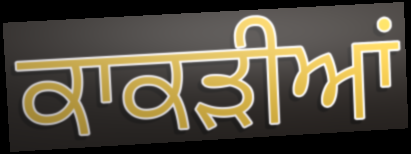
ਕਾਕੜੀਆਂ